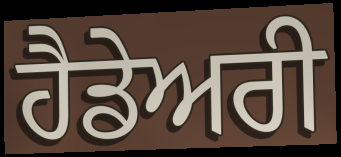
ਹੈਡੇਅਰੀ